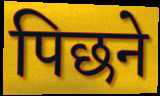
पिछने